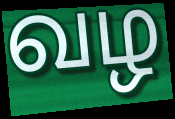
வழ